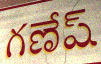
గణేష్